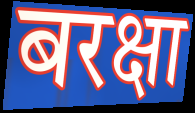
बरक्षा